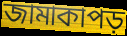
জামাকাপড়